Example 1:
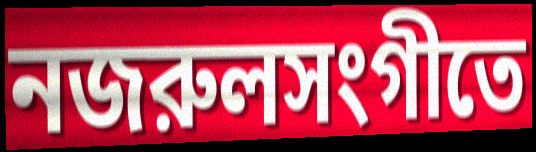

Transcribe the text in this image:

নজরুলসংগীতে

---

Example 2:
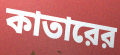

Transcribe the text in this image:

কাতারের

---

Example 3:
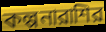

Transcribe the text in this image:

কল্পনারাশির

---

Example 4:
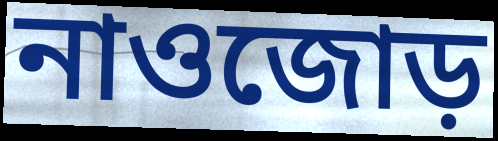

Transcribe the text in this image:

নাওজোড়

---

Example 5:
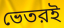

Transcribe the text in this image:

ভেতরই